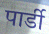
पार्डी